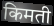
किमती